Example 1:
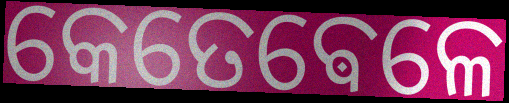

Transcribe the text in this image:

କେତେଵେଳେ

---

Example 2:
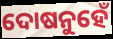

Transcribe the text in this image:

ଦୋଷନୁହେଁ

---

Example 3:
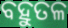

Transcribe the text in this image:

ବହୁତଳ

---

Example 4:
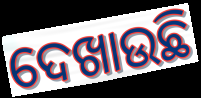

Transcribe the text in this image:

ଦେଖାଉଛି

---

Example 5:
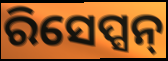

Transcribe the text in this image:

ରିସେପ୍ସନ୍